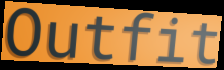
Outfit